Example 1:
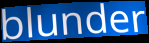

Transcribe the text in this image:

blunder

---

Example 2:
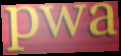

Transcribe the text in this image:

pwa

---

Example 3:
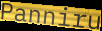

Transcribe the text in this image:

Panniru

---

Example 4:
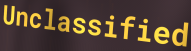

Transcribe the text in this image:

Unclassified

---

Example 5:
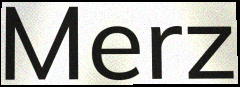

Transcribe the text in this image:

Merz